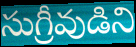
సుగ్రీవుడిని